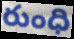
రుంధి